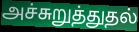
அச்சுறுத்துதல்